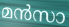
മൻസാ